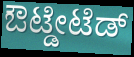
ಔಟ್ಡೇಟೆಡ್